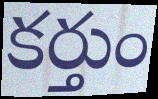
కర్తుం